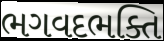
ભગવદભક્તિ